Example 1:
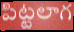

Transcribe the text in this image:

పిట్టలాగ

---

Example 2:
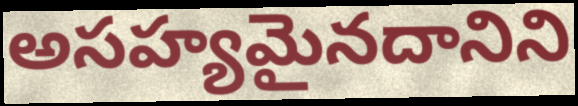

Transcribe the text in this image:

అసహ్యమైనదానిని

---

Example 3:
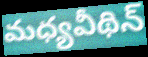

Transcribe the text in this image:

మధ్యవీథిన్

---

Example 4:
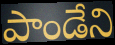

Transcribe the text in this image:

పాండేని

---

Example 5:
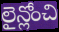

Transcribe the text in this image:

లైన్లోంచి